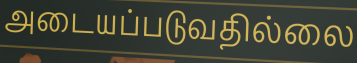
அடையப்படுவதில்லை